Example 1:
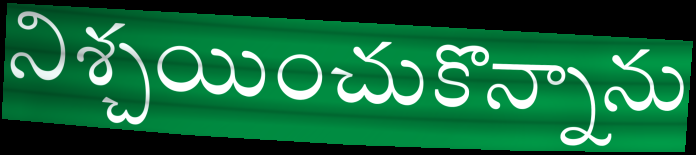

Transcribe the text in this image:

నిశ్చయించుకొన్నాను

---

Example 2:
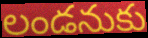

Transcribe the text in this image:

లండనుకు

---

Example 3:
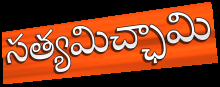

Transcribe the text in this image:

సత్యమిచ్ఛామి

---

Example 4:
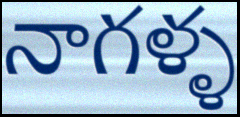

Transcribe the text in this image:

నాగళ్ళ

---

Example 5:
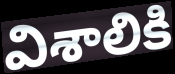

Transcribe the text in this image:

విశాలికి